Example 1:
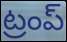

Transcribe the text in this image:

ట్రంప్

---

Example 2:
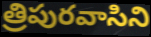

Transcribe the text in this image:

త్రిపురవాసిని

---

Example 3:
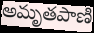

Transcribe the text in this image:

అమృతపాణి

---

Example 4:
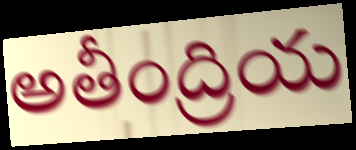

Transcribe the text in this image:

అతీంద్రియ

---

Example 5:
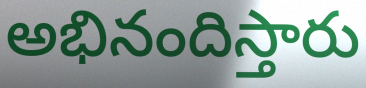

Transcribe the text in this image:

అభినందిస్తారు